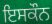
ਇਸਕੌਨ